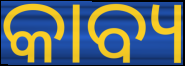
କାବ୍ୟ